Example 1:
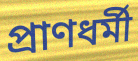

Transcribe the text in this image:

প্রাণধর্মী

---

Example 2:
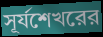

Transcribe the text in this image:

সূর্যশেখরের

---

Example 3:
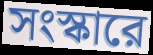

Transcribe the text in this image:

সংস্কারে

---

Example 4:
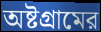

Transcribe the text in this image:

অষ্টগ্রামের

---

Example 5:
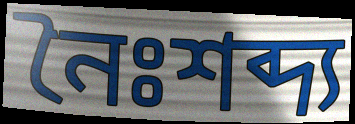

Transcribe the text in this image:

নৈঃশব্দ্য